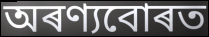
অৰণ্যবোৰত